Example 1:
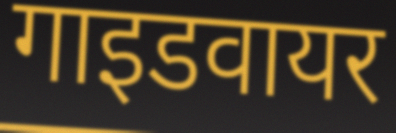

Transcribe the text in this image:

गाइडवायर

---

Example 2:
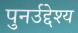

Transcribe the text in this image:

पुनर्उद्देश्य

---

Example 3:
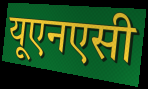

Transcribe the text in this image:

यूएनएसी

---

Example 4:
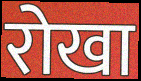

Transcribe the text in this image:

रोखा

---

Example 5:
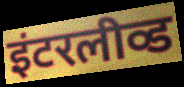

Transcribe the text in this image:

इंटरलीव्ड